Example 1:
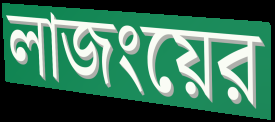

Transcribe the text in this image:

লাজংয়ের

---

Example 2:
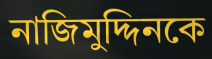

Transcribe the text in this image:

নাজিমুদ্দিনকে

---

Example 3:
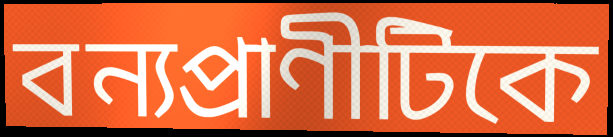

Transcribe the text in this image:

বন্যপ্রাণীটিকে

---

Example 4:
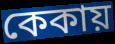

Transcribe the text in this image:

কেকায়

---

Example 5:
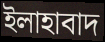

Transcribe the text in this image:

ইলাহাবাদ